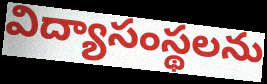
విద్యాసంస్థలను